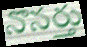
నొనర్తు